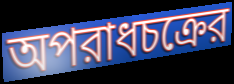
অপরাধচক্রের